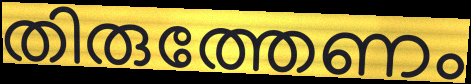
തിരുത്തേണം